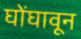
घोंघावून